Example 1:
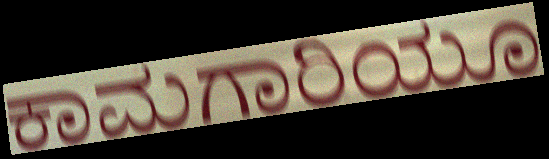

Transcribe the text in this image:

ಕಾಮಗಾರಿಯೂ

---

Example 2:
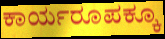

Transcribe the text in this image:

ಕಾರ್ಯರೂಪಕ್ಕೂ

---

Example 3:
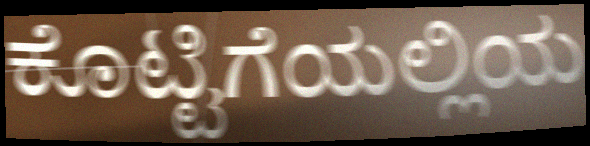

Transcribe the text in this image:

ಕೊಟ್ಟಿಗೆಯಲ್ಲಿಯ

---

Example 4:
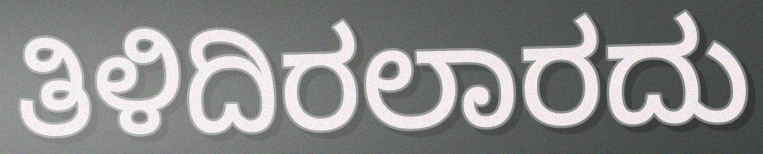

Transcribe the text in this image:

ತಿಳಿದಿರಲಾರದು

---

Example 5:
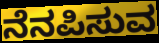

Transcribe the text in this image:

ನೆನಪಿಸುವ